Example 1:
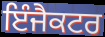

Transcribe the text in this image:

ਇੰਜੈਕਟਰ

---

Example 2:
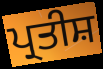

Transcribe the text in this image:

ਪ੍ਰਤੀਸ਼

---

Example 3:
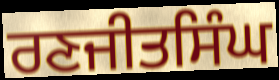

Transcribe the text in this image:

ਰਣਜੀਤਸਿੰਘ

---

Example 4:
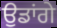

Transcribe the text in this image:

ਉਡਾਂਗੇ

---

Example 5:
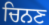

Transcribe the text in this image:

ਚਿਨਣ